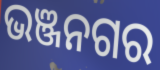
ଭଞ୍ଜନଗର